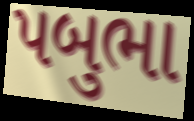
પબુભા